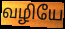
வழியே